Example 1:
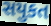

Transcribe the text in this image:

સયુકત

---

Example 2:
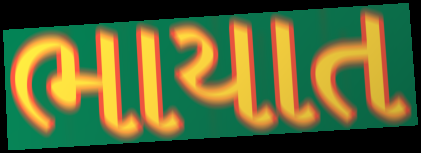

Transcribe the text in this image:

ભાયાત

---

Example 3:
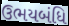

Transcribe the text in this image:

ઉભયબંધિ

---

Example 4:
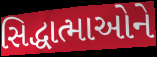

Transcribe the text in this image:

સિદ્ધાત્માઓને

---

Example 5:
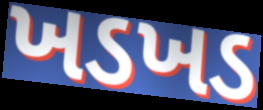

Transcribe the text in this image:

ખડખડ